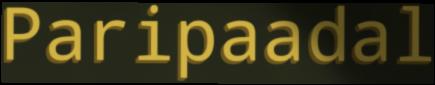
Paripaadal